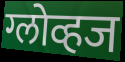
ग्लोव्हज